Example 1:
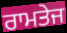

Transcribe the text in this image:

ਰਾਮਤੇਜ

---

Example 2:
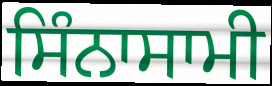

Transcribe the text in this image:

ਸਿੰਨਾਸਾਮੀ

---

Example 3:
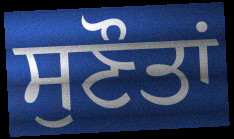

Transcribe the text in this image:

ਸੁਣੌਤਾਂ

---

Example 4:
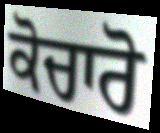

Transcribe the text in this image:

ਕੋਚਾਰੋ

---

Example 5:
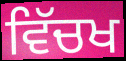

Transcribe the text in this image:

ਵਿੱਚਖ